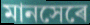
মানসেৰে